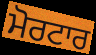
ਮੋਰਟਾਰ